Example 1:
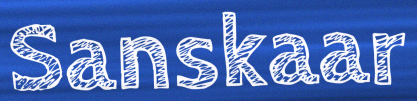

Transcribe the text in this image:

Sanskaar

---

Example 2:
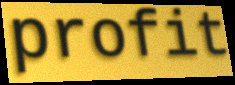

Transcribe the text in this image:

profit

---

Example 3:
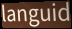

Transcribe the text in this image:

languid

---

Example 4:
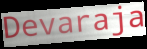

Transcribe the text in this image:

Devaraja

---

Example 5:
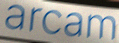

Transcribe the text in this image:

arcam